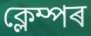
ক্লেম্পৰ